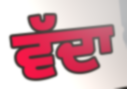
ਵੱਦਾ